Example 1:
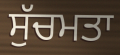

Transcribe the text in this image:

ਸੁੱਚਮਤਾ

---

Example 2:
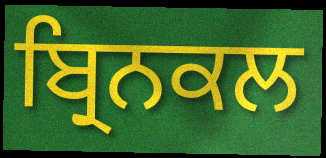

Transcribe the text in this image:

ਬ੍ਰਿਨਕਲ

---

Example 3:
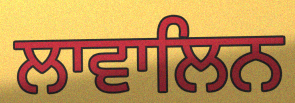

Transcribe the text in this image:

ਲਾਵਾਲਿਨ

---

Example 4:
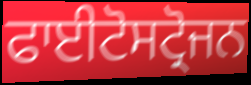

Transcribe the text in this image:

ਫਾਈਟੋਸਟ੍ਰੋਜਨ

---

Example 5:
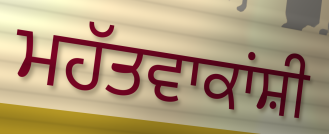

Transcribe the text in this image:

ਮਹੱਤਵਾਕਾਂਸ਼ੀ